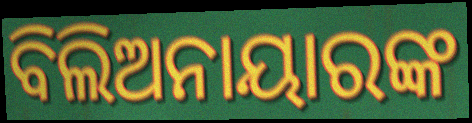
ବିଲିଅନାୟାରଙ୍କ